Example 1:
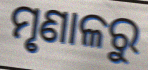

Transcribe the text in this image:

ମୃଣାଳରୁ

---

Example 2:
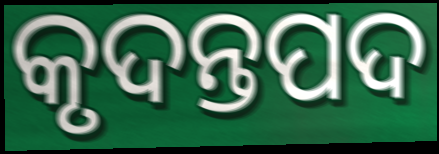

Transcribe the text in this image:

କୃଦନ୍ତପଦ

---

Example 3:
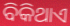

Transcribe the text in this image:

ବିକିଥାଏ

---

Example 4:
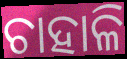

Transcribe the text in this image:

ଚାହାଳି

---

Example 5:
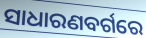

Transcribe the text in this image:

ସାଧାରଣବର୍ଗରେ